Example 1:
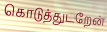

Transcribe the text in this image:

கொடுத்துடறேன்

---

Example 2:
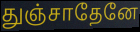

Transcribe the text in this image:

துஞ்சாதேனே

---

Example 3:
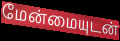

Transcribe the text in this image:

மேன்மையுடன்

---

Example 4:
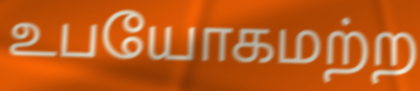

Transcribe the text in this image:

உபயோகமற்ற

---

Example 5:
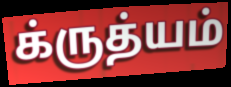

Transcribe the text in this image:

க்ருத்யம்